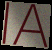
IA